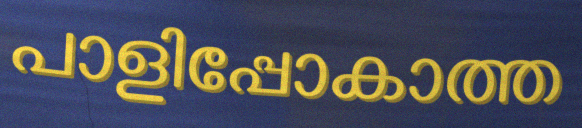
പാളിപ്പോകാത്ത